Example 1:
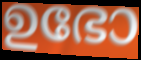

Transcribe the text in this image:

ഉഭോ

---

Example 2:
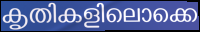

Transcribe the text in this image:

കൃതികളിലൊക്കെ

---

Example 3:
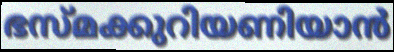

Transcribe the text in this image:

ഭസ്മക്കുറിയണിയാൻ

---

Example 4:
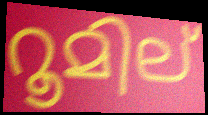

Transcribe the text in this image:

റൂമില്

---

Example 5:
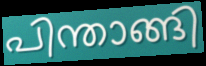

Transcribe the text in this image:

പിന്താങ്ങി